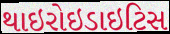
થાઇરોઇડાઇટિસ